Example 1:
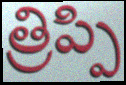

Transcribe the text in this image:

త్రిప్పి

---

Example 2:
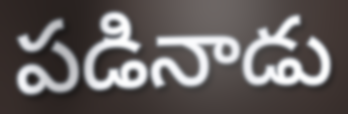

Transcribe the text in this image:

పడినాడు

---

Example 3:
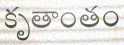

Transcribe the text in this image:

కృతాంతం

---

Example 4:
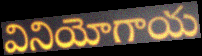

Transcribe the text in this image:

వినియోగాయ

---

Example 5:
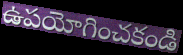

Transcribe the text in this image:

ఉపయోగించకండి